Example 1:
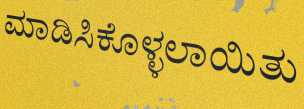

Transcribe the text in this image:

ಮಾಡಿಸಿಕೊಳ್ಳಲಾಯಿತು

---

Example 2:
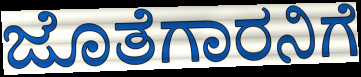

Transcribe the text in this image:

ಜೊತೆಗಾರನಿಗೆ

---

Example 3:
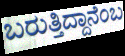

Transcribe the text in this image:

ಬರುತ್ತಿದ್ದಾನೆಂಬ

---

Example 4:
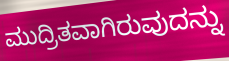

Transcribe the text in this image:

ಮುದ್ರಿತವಾಗಿರುವುದನ್ನು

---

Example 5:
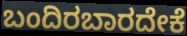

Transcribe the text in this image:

ಬಂದಿರಬಾರದೇಕೆ